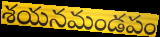
శయనమండపం